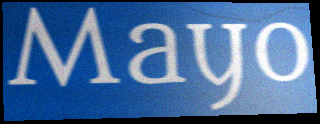
Mayo